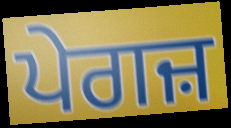
ਪੇਗਜ਼